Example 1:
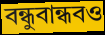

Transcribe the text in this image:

বন্ধুবান্ধবও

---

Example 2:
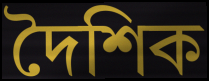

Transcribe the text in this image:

দৈশিক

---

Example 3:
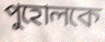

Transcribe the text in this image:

পুহোলকে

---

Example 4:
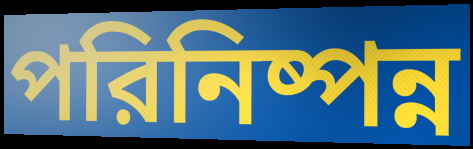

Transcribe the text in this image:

পরিনিষ্পন্ন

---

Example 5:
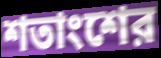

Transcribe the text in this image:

শতাংশের